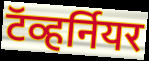
टॅव्हर्नियर